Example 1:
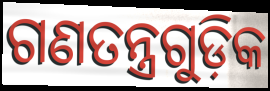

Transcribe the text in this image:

ଗଣତନ୍ତ୍ରଗୁଡ଼ିକ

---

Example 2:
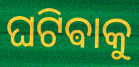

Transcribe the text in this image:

ଘଟିଵାକୁ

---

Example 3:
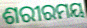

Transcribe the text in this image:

ଶରୀରମୟ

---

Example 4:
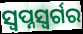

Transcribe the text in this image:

ସ୍ୱପ୍ନସ୍ୱର୍ଗର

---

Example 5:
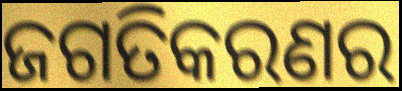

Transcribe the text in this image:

ଜଗତିକରଣର